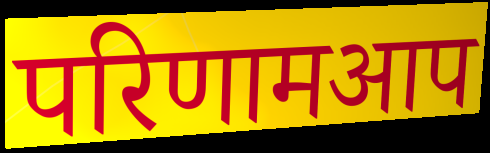
परिणामआप